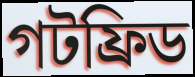
গটফ্রিড